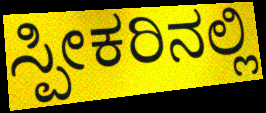
ಸ್ಪೀಕರಿನಲ್ಲಿ